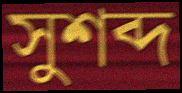
সুশব্দ